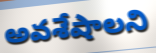
అవశేషాలని